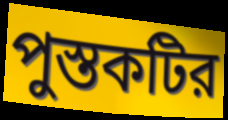
পুস্তকটির